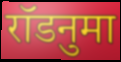
रॉडनुमा